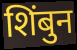
शिंबुन